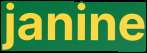
janine